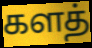
களத்